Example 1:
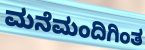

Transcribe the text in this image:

ಮನೆಮಂದಿಗಿಂತ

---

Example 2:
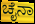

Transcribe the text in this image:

ಚೈನಾ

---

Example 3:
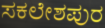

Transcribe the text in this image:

ಸಕಲೇಶಪುರ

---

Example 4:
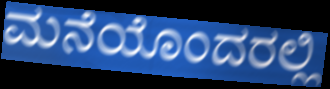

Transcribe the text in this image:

ಮನೆಯೊಂದರಲ್ಲಿ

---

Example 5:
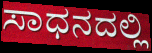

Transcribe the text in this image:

ಸಾಧನದಲ್ಲಿ